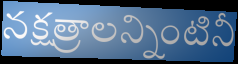
నక్షత్రాలన్నింటినీ